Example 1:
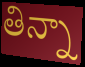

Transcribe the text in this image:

తిన్నా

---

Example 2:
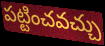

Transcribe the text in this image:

పట్టించవచ్చు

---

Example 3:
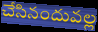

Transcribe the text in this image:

చేసినందువల్ల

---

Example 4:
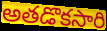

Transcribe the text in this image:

అతడొకసారి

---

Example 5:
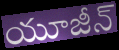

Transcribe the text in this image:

యూజీన్